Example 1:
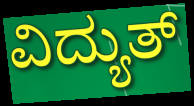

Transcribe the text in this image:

ವಿದ್ಯುತ್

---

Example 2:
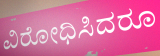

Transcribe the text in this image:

ವಿರೋಧಿಸಿದರೂ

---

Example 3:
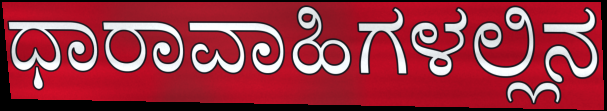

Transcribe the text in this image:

ಧಾರಾವಾಹಿಗಳಲ್ಲಿನ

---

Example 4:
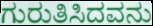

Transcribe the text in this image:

ಗುರುತಿಸಿದವನು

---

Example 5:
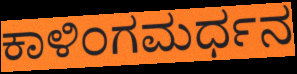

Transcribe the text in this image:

ಕಾಳಿಂಗಮರ್ಧನ